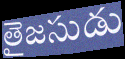
తైజసుడు